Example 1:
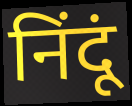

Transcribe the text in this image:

निंदूं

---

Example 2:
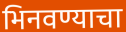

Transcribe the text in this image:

भिनवण्याचा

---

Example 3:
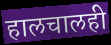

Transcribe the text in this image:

हालचालही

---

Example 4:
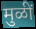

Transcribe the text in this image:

मुळीं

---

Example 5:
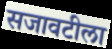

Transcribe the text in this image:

सजावटीला